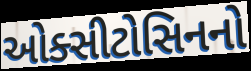
ઓક્સીટોસિનનો